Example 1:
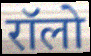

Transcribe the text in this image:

रॉलो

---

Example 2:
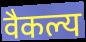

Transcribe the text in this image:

वैकल्य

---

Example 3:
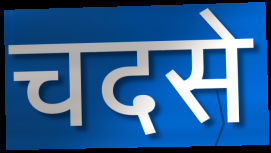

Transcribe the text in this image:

चदसे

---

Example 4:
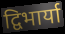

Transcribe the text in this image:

द्विभार्या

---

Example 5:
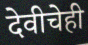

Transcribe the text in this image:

देवीचेही